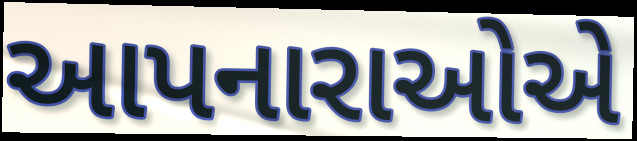
આપનારાઓએ